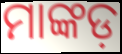
ମାଙ୍କଡ଼